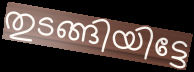
തുടങ്ങിയിട്ടേ